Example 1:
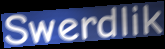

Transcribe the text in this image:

Swerdlik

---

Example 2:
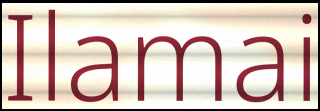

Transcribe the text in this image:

Ilamai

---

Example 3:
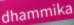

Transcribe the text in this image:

dhammika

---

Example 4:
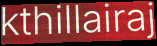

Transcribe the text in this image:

kthillairaj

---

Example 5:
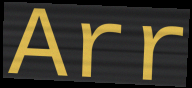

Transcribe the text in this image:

Arr